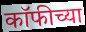
कॉफीच्या